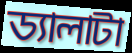
ড্যালাটা